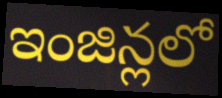
ఇంజిన్లలో